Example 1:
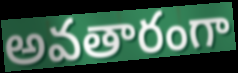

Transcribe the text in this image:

అవతారంగా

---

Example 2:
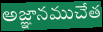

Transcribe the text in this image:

అజ్ఞానముచేత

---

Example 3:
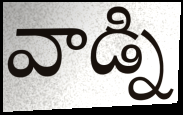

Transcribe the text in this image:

వాడ్ని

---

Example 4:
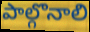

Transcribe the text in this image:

పాల్గొనాలి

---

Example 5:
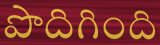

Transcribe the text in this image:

పొదిగింది